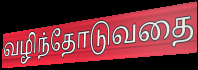
வழிந்தோடுவதை